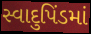
સ્વાદુપિંડમાં